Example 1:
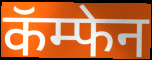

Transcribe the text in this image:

कॅम्फेन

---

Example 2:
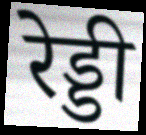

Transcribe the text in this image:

रेड्डी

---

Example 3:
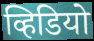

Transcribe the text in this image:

व्हिडियो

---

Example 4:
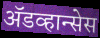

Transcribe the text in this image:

ॲडव्हान्सेस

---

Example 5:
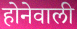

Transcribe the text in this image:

होनेवाली